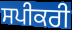
ਸਪੀਕਰੀ